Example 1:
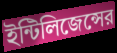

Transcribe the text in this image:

ইন্টিলিজেন্সের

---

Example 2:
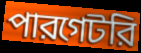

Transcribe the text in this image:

পারগেটরি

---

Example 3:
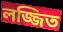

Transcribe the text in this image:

লজ্জিত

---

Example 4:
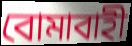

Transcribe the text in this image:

বোমাবাহী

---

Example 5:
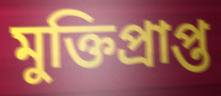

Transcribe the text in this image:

মুক্তিপ্রাপ্ত